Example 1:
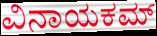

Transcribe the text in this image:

ವಿನಾಯಕಮ್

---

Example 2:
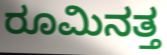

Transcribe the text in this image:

ರೂಮಿನತ್ತ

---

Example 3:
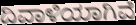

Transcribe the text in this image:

ದಿವಾಳಿಯಾಗಿವೆ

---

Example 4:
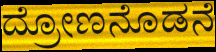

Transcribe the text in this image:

ದ್ರೋಣನೊಡನೆ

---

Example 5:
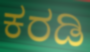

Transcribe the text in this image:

ಕರಡಿ